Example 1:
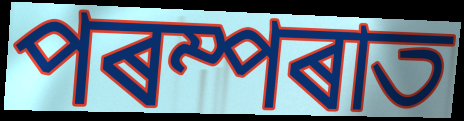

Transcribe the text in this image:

পৰম্পৰাত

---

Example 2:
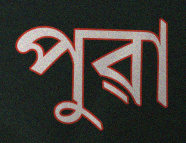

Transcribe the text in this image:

পুৱা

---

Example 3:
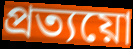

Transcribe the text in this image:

প্ৰত্যয়ো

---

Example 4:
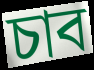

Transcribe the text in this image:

চাব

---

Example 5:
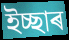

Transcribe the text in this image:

ইচ্ছাৰ